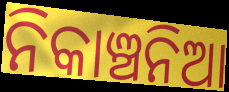
ନିକାଞ୍ଚନିଆ